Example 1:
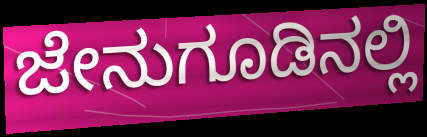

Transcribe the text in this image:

ಜೇನುಗೂಡಿನಲ್ಲಿ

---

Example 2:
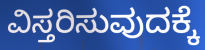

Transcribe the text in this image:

ವಿಸ್ತರಿಸುವುದಕ್ಕೆ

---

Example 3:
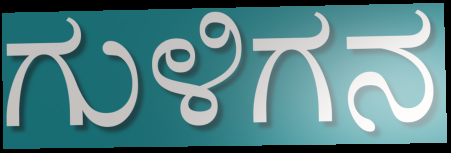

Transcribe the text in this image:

ಗುಳಿಗನ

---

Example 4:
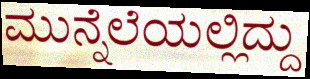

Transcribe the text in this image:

ಮುನ್ನೆಲೆಯಲ್ಲಿದ್ದು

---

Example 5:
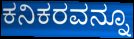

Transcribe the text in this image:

ಕನಿಕರವನ್ನೂ